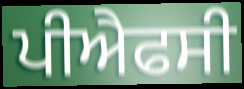
ਪੀਐਫਸੀ